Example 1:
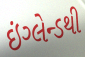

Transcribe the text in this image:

ઇંગ્લેન્ડથી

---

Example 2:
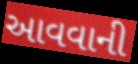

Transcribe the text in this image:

આવવાની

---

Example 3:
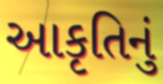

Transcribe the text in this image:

આકૃતિનું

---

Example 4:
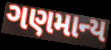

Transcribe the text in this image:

ગણમાન્ય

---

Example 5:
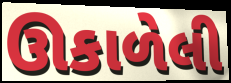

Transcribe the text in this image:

ઊકાળેલી